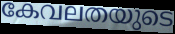
കേവലതയുടെ